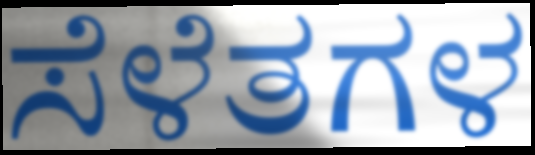
ಸೆಳೆತಗಳ